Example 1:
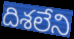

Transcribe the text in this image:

దిశలేని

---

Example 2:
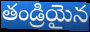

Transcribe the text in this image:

తండ్రియైన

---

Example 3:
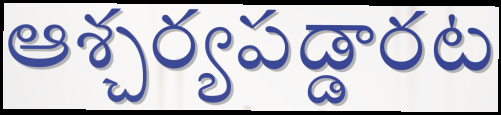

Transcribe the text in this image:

ఆశ్చర్యపడ్డారట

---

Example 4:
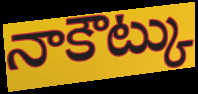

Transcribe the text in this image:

నాకౌట్కు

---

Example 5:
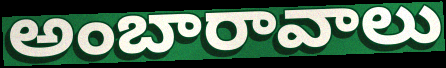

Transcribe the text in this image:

అంబారావాలు